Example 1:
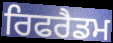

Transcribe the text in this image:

ਰਿਫਰੈਡਮ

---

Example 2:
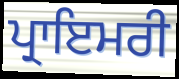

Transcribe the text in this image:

ਪ੍ਰਾਇਮਰੀ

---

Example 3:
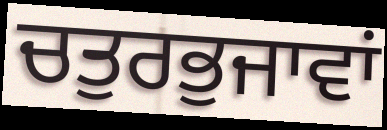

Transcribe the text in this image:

ਚਤੁਰਭੁਜਾਵਾਂ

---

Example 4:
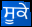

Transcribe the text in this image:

ਸੂਕੇ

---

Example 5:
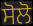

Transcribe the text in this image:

ਸੋਲੋ